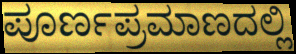
ಪೂರ್ಣಪ್ರಮಾಣದಲ್ಲಿ